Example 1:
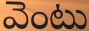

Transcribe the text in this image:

వెంటు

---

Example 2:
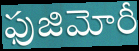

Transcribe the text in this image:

ఫుజిమోరీ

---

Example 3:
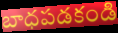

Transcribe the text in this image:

బాధపడకండి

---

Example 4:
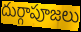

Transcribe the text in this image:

దుర్గాపూజలు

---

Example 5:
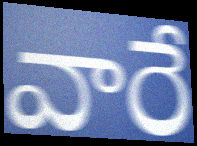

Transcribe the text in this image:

వారే